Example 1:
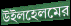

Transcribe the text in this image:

উইলহেলমের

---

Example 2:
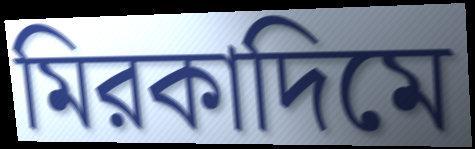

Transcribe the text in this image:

মিরকাদিমে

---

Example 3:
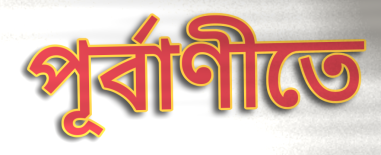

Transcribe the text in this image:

পূর্বাণীতে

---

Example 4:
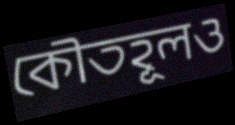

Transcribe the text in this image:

কৌতহূলও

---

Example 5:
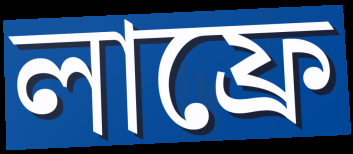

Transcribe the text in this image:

লাফ্রে